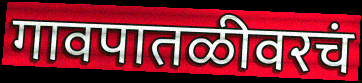
गावपातळीवरचं